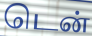
டென்